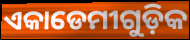
ଏକାଡେମୀଗୁଡ଼ିକ